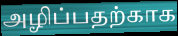
அழிப்பதற்காக